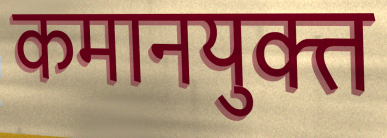
कमानयुक्त